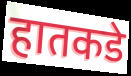
हातकडे